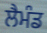
ਲੈਮੰਡ